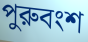
পুরুবংশ